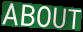
ABOUT